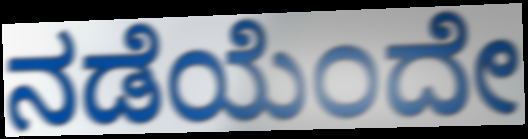
ನಡೆಯೆಂದೇ